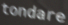
tondare